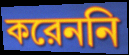
করেননি